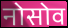
नोसोव